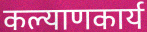
कल्याणकार्य